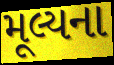
મૂલ્યના